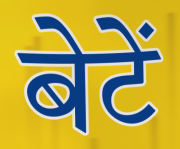
बेटें